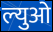
ल्युओ